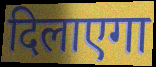
दिलाएगा